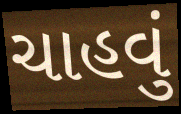
ચાહવું